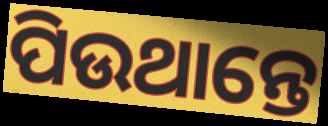
ପିଉଥାନ୍ତେ